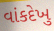
વાંકદેખુ